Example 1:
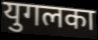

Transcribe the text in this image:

युगलका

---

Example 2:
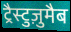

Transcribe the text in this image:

ट्रैस्टुज़ुमैब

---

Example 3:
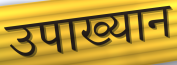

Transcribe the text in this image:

उपाख्यान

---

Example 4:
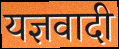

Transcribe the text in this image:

यज्ञवादी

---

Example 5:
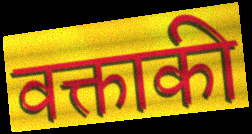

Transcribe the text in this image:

वक्ताकी